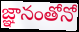
జ్ఞానంతోనో